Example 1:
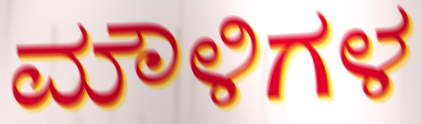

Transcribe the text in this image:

ಮೌಳಿಗಳ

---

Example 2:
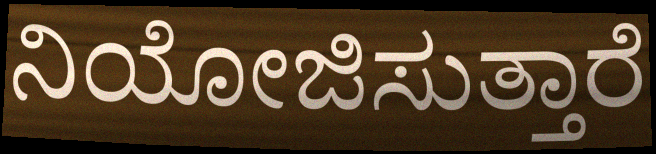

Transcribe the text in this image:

ನಿಯೋಜಿಸುತ್ತಾರೆ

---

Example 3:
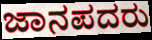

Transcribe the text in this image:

ಜಾನಪದರು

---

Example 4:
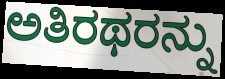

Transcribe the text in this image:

ಅತಿರಥರನ್ನು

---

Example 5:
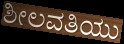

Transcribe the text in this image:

ಶೀಲವತಿಯು